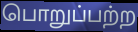
பொறுப்பற்ற